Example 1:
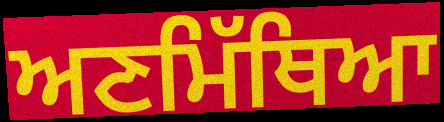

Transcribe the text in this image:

ਅਣਮਿੱਥਿਆ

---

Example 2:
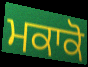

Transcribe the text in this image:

ਮਕਾਕੋ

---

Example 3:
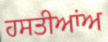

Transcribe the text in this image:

ਹਸਤੀਆਂਅ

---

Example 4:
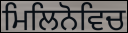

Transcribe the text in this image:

ਮਿਲਿਨੋਵਿਚ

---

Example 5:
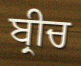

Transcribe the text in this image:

ਬ੍ਰੀਚ